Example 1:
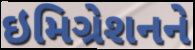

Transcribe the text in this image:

ઇમિગ્રેશનને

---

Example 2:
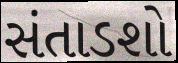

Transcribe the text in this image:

સંતાડશો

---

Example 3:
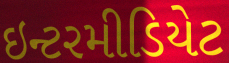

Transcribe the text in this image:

ઇન્ટરમીડિયેટ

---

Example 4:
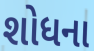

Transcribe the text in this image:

શોધના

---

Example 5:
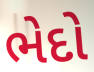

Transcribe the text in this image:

ભેદો